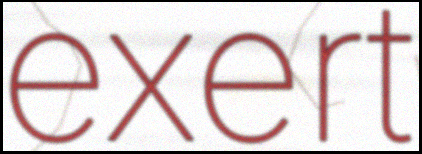
exert